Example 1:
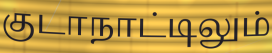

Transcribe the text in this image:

குடாநாட்டிலும்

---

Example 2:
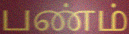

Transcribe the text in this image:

பண்ம்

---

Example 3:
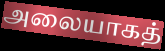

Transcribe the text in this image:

அலையாகத்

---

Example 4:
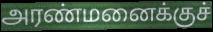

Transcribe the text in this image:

அரண்மனைக்குச்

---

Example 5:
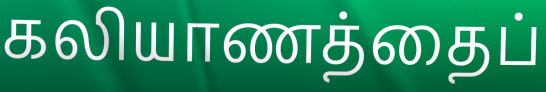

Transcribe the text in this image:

கலியாணத்தைப்